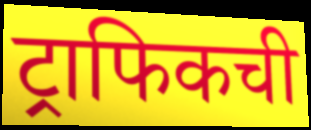
ट्राफिकची